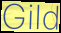
Gild